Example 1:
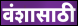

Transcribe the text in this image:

वंशासाठी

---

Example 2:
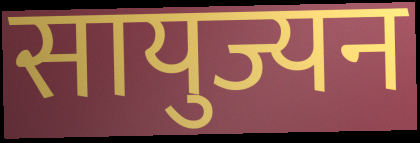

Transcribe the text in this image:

सायुज्यन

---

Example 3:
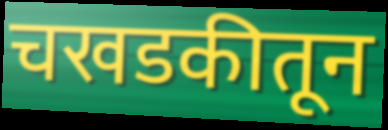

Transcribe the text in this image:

चखडकीतून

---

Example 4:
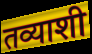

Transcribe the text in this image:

तव्याशी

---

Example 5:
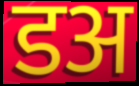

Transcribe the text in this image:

डअ